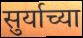
सुर्याच्या